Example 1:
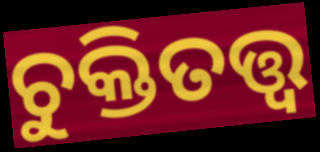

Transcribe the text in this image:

ଚୁକ୍ତିତତ୍ତ୍ଵ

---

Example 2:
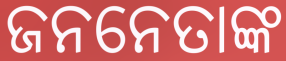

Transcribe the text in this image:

ଜନନେତାଙ୍କ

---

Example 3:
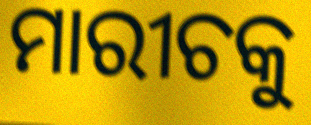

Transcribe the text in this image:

ମାରୀଚକୁ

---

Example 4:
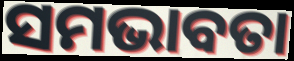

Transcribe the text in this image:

ସମଭାବତା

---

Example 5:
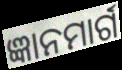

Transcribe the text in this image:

ଜ୍ଞାନମାର୍ଗ